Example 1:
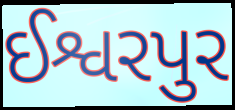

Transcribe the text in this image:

ઈશ્વરપુર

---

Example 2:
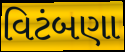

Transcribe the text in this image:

વિટંબણા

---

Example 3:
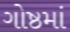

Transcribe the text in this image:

ગોષ્ઠમાં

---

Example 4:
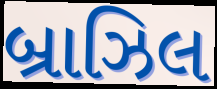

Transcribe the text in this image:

બ્રાઝિલ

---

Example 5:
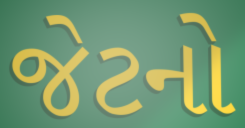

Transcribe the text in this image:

જેટનો